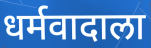
धर्मवादाला